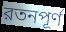
রতনপূর্ণ